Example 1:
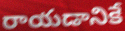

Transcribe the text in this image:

రాయడానికే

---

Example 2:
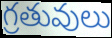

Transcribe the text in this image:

గ్రతువులు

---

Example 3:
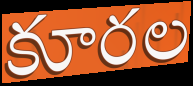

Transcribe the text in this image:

కూరల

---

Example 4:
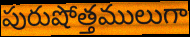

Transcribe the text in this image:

పురుషోత్తములుగా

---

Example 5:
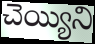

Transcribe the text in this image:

చెయ్యిని